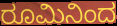
ರೂಮಿನಿಂದ